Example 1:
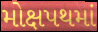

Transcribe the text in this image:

મોક્ષપથમાં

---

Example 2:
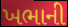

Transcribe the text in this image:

ખભાની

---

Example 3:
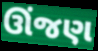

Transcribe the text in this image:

ઊંજણ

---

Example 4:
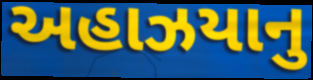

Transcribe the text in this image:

અહાઝયાનુ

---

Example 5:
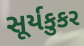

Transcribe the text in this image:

સૂર્યકુકર